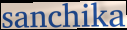
sanchika